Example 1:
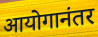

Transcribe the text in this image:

आयोगानंतर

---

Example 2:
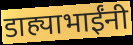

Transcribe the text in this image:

डाह्याभाईंनी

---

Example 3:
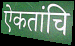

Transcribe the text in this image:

ऐकतांचि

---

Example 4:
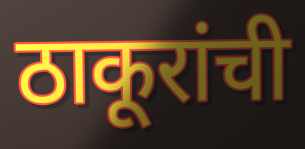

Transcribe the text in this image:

ठाकूरांची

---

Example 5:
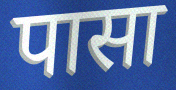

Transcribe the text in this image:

पासा